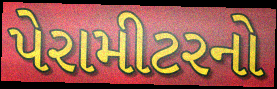
પેરામીટરનો